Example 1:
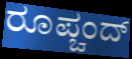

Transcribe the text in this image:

ರೂಪ್ಚಂದ್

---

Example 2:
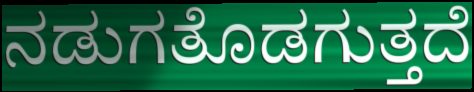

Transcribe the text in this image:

ನಡುಗತೊಡಗುತ್ತದೆ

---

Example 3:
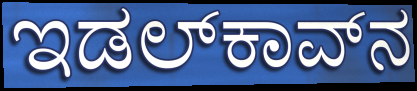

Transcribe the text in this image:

ಇಡಲ್‌ಕಾವ್‌ನ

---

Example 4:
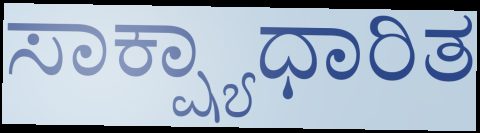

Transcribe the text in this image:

ಸಾಕ್ಷ್ಯಾಧಾರಿತ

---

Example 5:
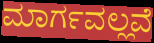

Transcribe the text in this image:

ಮಾರ್ಗವಲ್ಲವೆ